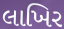
લાખિર